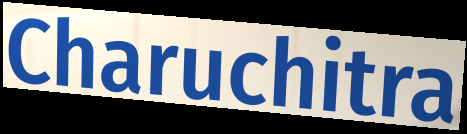
Charuchitra